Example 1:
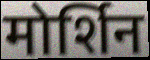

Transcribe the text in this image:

मोर्शिन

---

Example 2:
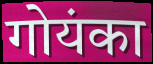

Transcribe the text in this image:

गोयंका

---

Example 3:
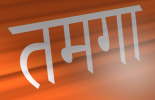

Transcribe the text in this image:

तमगा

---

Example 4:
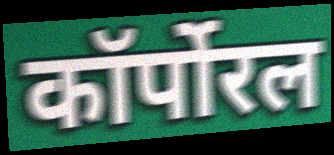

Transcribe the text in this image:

कॉर्पोरल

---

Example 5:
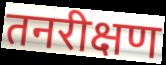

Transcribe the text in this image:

तनरीक्षण